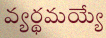
వ్యర్థమయ్యే